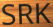
SRK